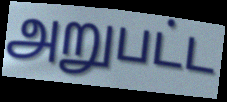
அறுபட்ட